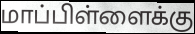
மாப்பிள்ளைக்கு